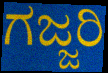
ಗಜ್ಜರಿ